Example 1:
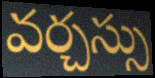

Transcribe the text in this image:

వర్చస్సు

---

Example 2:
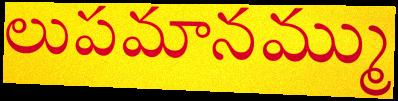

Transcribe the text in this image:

లుపమానమ్ము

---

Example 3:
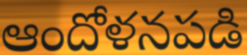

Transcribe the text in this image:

ఆందోళనపడి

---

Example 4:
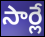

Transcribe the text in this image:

సార్లే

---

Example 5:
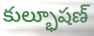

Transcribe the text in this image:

కుల్భూషణ్